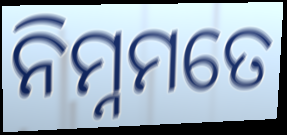
ନିମ୍ନମତେ